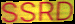
SSRD